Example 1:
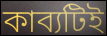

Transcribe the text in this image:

কাব্যটিই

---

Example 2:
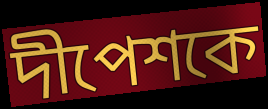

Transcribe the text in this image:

দীপেশকে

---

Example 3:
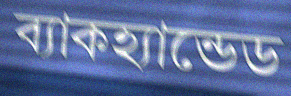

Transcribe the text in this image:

ব্যাকহ্যান্ডেড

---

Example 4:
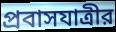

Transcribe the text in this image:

প্রবাসযাত্রীর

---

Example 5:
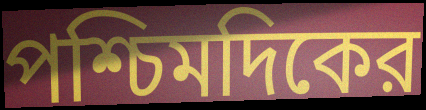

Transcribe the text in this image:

পশ্চিমদিকের